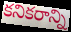
కనికరాన్ని